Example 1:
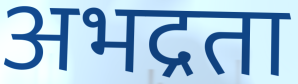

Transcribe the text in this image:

अभद्रता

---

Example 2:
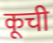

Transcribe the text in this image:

कूची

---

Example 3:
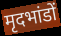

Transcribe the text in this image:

मृदभांडों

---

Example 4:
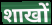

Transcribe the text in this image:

शाखों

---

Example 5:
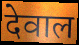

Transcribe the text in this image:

देवाल